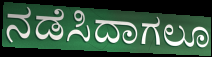
ನಡೆಸಿದಾಗಲೂ